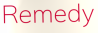
Remedy